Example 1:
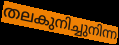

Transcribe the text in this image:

തലകുനിച്ചുനിന്ന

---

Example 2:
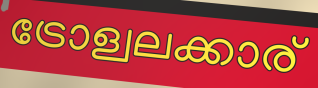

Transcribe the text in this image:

ട്രോള്വലക്കാര്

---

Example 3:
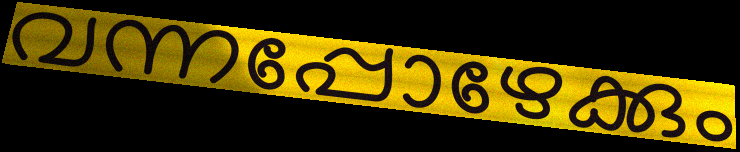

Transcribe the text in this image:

വന്നപ്പോഴേക്കും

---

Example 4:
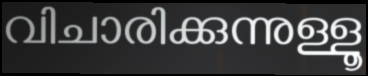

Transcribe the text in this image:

വിചാരിക്കുന്നുള്ളൂ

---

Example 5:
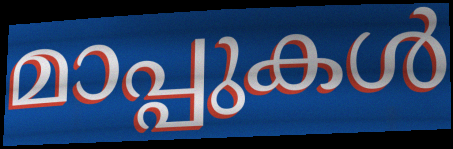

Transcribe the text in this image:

മാപ്പുകൾ